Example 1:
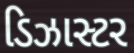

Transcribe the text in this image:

ડિઝાસ્ટર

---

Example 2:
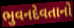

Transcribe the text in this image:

ભુવનદેવતાનો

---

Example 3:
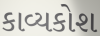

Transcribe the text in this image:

કાવ્યકોશ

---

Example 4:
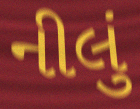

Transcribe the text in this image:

નીલું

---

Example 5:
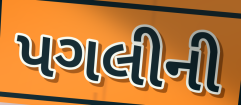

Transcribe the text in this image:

પગલીની